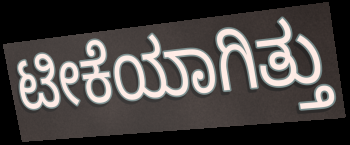
ಟೀಕೆಯಾಗಿತ್ತು